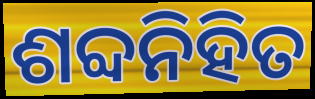
ଶବ୍ଦନିହିତ